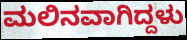
ಮಲಿನವಾಗಿದ್ದಳು